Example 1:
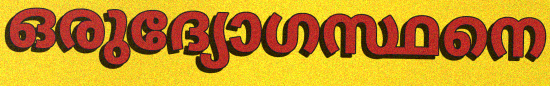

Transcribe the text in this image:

ഒരുദ്യോഗസ്ഥനെ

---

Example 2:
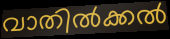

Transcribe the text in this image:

വാതിൽക്കൽ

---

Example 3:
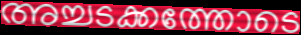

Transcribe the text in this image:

അച്ചടക്കത്തോടെ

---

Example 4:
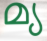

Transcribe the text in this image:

മ്യ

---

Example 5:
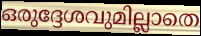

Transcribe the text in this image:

ഒരുദ്ദേശവുമില്ലാതെ